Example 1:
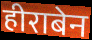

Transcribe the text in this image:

हीराबेन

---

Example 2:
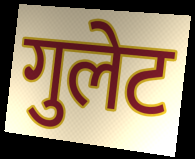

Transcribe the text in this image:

गुलेट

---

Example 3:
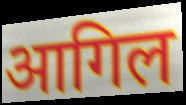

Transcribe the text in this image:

आगिल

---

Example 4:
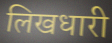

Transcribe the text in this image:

लिखधारी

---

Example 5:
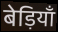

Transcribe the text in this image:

बेड़ियाँ